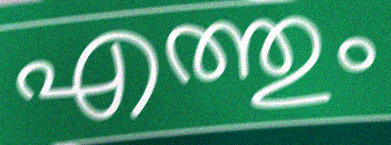
എത്തും